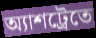
অ্যাশট্রেতে